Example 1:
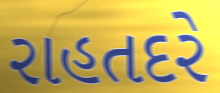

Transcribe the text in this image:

રાહતદરે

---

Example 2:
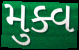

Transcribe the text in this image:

મુક્વ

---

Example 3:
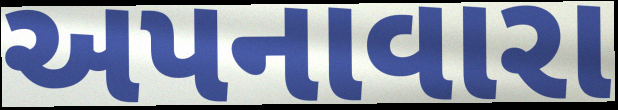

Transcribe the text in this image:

અપનાવારા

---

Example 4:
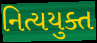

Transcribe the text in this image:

નિત્યયુક્ત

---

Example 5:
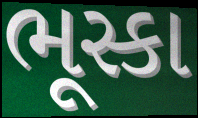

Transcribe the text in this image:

ભૂસ્કા